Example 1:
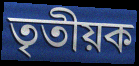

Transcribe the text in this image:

তৃতীয়ক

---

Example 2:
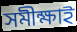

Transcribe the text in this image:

সমীক্ষাই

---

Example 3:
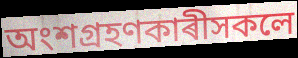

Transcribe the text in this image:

অংশগ্ৰহণকাৰীসকলে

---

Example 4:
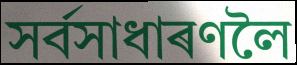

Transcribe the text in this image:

সৰ্বসাধাৰণলৈ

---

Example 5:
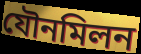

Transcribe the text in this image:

যৌনমিলন